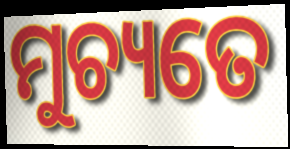
ମୁଚ୍ୟତେ